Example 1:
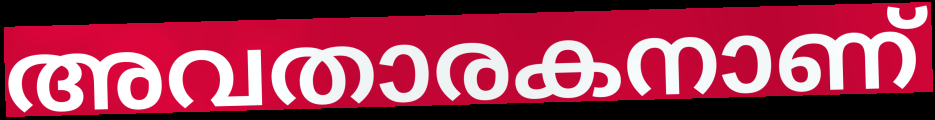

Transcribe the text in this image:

അവതാരകനാണ്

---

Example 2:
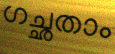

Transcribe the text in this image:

ഗച്ഛതാം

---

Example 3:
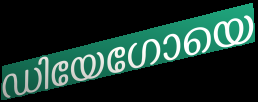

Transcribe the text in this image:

ഡിയേഗോയെ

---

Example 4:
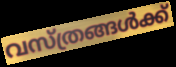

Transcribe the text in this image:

വസ്ത്രങ്ങൾക്ക്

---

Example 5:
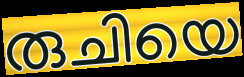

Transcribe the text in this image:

രുചിയെ